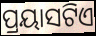
ପ୍ରୟାସଟିଏ